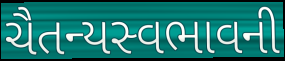
ચૈતન્યસ્વભાવની